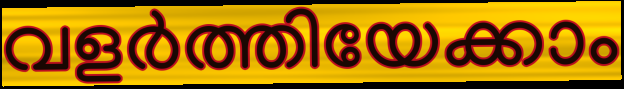
വളർത്തിയേക്കാം